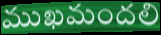
ముఖమందలి